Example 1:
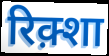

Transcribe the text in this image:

रिक़्शा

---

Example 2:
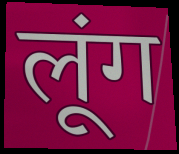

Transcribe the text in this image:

लूंग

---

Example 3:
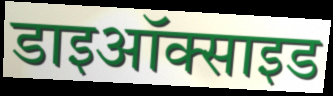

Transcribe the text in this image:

डाइऑक्साइड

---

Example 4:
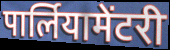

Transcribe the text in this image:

पार्लियामेंटरी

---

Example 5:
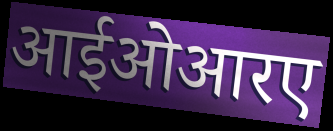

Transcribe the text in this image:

आईओआरए